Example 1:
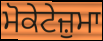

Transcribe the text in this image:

ਮੋਕੇਟੇਜ਼ੁਮਾ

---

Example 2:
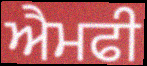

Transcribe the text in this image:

ਐਮਫੀ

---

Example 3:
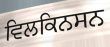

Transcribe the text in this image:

ਵਿਲਕਿਨਸਨ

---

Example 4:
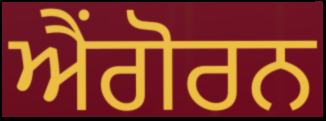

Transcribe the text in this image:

ਐਂਗੋਰਨ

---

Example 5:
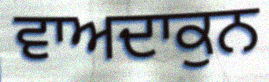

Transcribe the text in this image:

ਵਾਅਦਾਕੁਨ